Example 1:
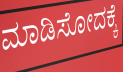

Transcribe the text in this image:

ಮಾಡಿಸೋದಕ್ಕೆ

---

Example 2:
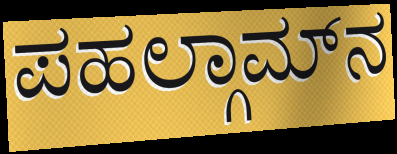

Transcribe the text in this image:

ಪಹಲ್ಗಾಮ್‌ನ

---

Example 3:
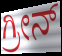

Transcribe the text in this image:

ಗ್ರೀನ್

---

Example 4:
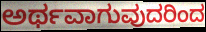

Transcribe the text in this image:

ಅರ್ಥವಾಗುವುದರಿಂದ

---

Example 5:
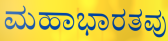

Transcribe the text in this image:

ಮಹಾಭಾರತವು